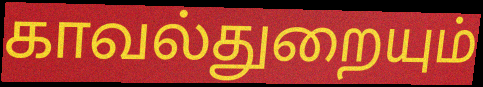
காவல்துறையும்